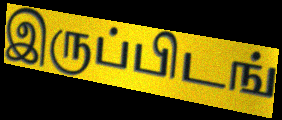
இருப்பிடங்